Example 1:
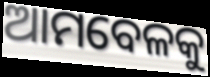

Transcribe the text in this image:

ଆମବେଳକୁ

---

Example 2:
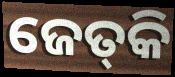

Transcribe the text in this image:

ଜେତ୍‌କି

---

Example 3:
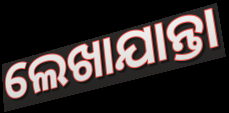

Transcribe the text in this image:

ଲେଖାଯାନ୍ତା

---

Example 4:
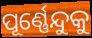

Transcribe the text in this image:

ପୂର୍ଣ୍ଣେନ୍ଦୁକୁ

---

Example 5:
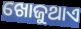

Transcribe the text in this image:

ଖୋଜୁଥାଏ